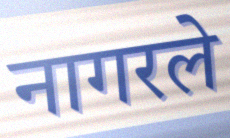
नागरले